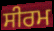
ਸੀਰਮ